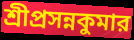
শ্রীপ্রসন্নকুমার